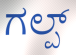
ಗಲ್ಪ್